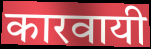
कारवायी